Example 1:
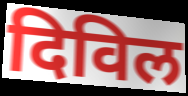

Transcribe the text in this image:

दिविल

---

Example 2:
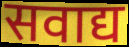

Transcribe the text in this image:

सवाद्य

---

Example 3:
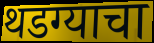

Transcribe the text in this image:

थडग्याचा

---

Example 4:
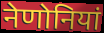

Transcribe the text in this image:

नेणोनियां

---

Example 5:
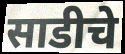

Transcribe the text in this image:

साडीचे